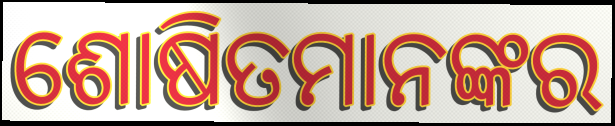
ଶୋଷିତମାନଙ୍କର